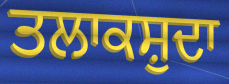
ਤਲਾਕਸ਼ੁਦਾ